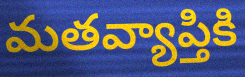
మతవ్యాప్తికి